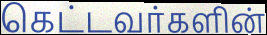
கெட்டவர்களின்